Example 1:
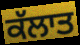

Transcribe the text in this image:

ਕੱਲਾਤ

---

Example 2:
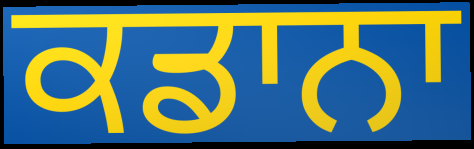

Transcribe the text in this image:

ਕਡਾਨਾ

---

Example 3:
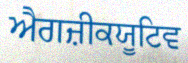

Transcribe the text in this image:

ਐਗਜ਼ੀਕਯੂਟਿਵ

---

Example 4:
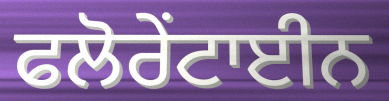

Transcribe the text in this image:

ਫਲੋਰੇਂਟਾਈਨ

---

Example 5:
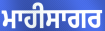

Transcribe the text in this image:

ਮਾਹੀਸਾਗਰ